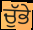
ਚੁੱਭੇ